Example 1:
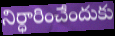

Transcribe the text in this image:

నిర్ధారించేందుకు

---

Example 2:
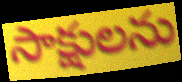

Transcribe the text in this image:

సాక్షులను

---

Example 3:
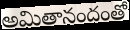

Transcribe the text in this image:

అమితానందంతో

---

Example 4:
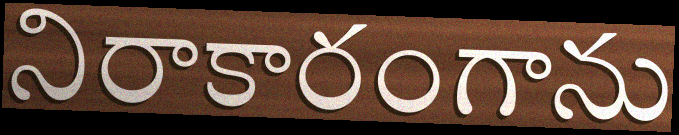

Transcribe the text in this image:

నిరాకారంగాను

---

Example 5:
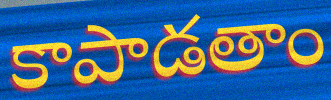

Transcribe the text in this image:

కాపాడతాం